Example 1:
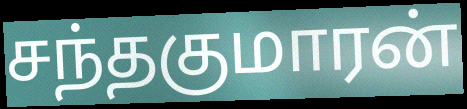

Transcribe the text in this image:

சந்தகுமாரன்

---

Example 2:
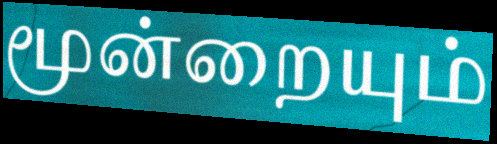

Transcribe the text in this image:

மூன்றையும்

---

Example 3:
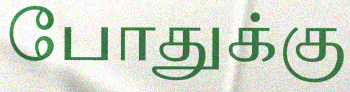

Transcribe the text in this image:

போதுக்கு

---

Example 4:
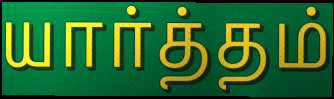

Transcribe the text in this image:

யார்த்தம்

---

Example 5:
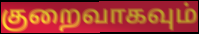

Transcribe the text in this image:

குறைவாகவும்